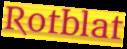
Rotblat